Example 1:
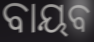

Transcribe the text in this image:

ବାୟବ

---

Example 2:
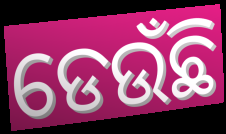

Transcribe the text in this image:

ଡେଉଁଛି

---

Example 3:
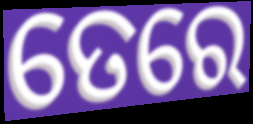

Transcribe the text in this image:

ତେରେ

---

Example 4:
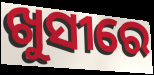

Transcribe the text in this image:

ଖୁସୀରେ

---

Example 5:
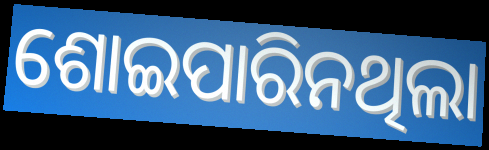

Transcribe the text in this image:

ଶୋଇପାରିନଥିଲା